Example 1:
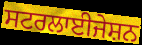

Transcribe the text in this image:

ਸਟਰਲਾਈਜੇਸ਼ਨ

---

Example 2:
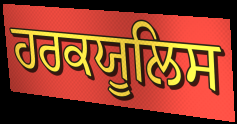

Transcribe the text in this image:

ਹਰਕਯੂਲਿਸ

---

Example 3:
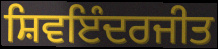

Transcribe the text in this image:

ਸ਼ਿਵਇੰਦਰਜੀਤ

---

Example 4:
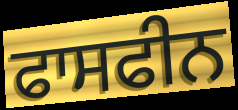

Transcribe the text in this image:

ਫਾਸਫੀਨ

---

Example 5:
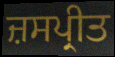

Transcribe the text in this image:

ਜ਼ਸਪ੍ਰੀਤ